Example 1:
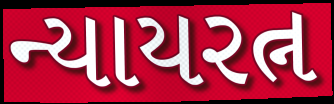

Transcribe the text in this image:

ન્યાયરત્ન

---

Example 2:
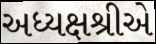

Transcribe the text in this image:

અધ્યક્ષશ્રીએ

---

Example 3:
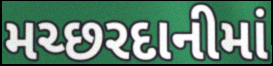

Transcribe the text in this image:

મચ્છરદાનીમાં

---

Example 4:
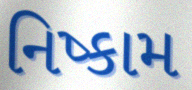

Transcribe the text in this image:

નિષ્કામ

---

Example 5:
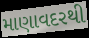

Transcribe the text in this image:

માણાવદરથી